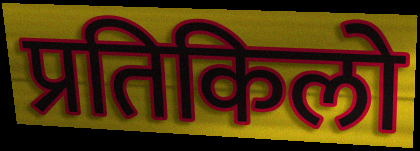
प्रतिकिलो